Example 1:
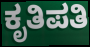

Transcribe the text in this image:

ಕೃತಿಪತಿ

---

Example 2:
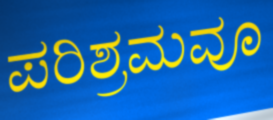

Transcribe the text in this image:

ಪರಿಶ್ರಮವೂ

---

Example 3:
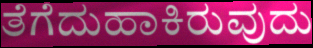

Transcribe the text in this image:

ತೆಗೆದುಹಾಕಿರುವುದು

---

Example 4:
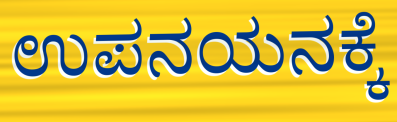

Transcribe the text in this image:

ಉಪನಯನಕ್ಕೆ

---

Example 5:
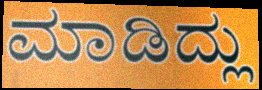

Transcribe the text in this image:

ಮಾಡಿದ್ಲು